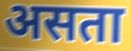
असता